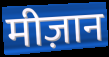
मीज़ान